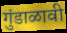
गुंडाळावी